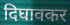
दिघावकर